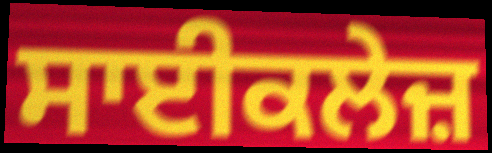
ਸਾਈਕਲੇਜ਼